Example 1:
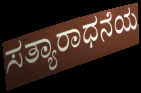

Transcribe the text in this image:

ಸತ್ಯಾರಾಧನೆಯ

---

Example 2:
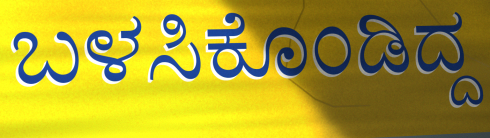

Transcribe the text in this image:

ಬಳಸಿಕೊಂಡಿದ್ದ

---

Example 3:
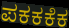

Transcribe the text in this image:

ಪಕಕಕೆಕ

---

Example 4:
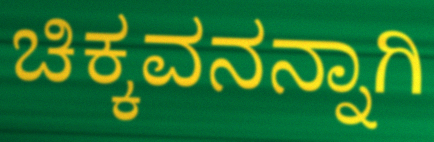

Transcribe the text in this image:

ಚಿಕ್ಕವನನ್ನಾಗಿ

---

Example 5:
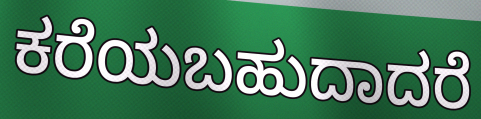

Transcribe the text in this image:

ಕರೆಯಬಹುದಾದರೆ